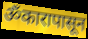
ॐकारापासून